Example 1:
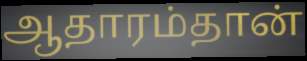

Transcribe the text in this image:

ஆதாரம்தான்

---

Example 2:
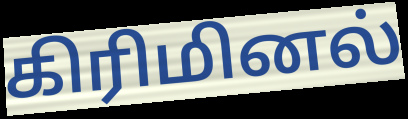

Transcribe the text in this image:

கிரிமினல்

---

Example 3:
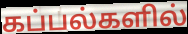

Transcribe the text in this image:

கப்பல்களில்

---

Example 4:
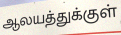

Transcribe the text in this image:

ஆலயத்துக்குள்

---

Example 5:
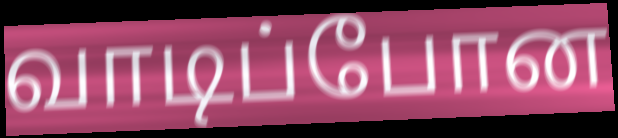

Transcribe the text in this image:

வாடிப்போன